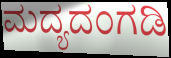
ಮದ್ಯದಂಗಡಿ